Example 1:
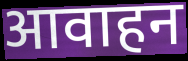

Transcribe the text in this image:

आवाहन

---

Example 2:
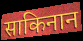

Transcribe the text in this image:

साकिनान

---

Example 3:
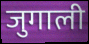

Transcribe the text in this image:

जुगाली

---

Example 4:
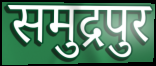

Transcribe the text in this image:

समुद्रपुर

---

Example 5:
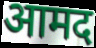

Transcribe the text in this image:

आमद